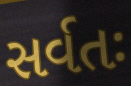
સર્વતઃ